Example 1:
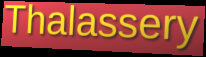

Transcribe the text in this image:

Thalassery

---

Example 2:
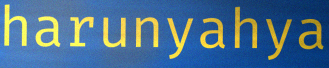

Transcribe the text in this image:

harunyahya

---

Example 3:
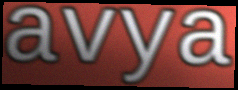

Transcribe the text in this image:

avya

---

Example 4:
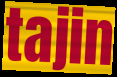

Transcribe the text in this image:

tajin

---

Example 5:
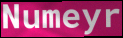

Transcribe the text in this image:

Numeyr